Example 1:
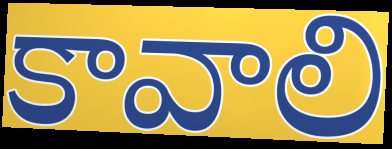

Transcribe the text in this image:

కావాలి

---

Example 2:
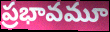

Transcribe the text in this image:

ప్రభావమూ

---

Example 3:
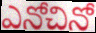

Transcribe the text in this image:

ఎనోచినో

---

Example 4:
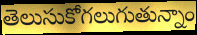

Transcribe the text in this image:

తెలుసుకోగలుగుతున్నాం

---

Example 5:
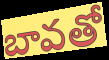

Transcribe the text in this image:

బావతో